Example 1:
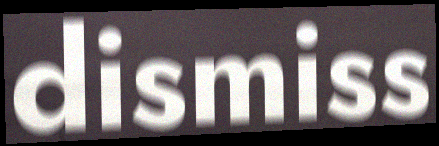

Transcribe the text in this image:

dismiss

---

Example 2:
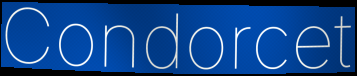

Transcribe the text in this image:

Condorcet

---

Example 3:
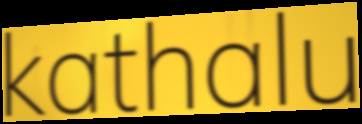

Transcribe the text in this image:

kathalu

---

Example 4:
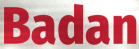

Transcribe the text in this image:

Badan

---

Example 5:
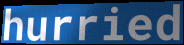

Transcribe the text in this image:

hurried